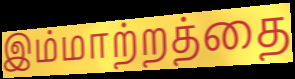
இம்மாற்றத்தை